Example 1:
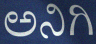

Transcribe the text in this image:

ಅನಿಗಿ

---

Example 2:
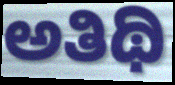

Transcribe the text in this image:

ಅತಿಥಿ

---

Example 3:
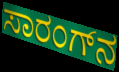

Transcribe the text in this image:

ಸಾರಂಗ್‌ನ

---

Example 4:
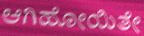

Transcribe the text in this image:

ಆಗಿಹೋಯಿತೇ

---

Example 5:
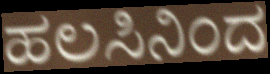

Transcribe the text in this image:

ಹಲಸಿನಿಂದ